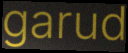
garud